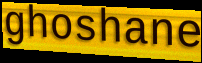
ghoshane